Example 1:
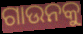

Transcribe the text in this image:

ଗାଉନକୁ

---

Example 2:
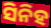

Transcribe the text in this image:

ସିନିହ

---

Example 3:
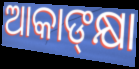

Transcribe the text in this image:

ଆକାଙ୍‍କ୍ଷା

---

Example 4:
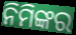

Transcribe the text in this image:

ନିମିଙ୍କର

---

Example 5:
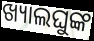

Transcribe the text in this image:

ଖ୍ୟାଲଘୁଙ୍କ